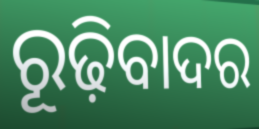
ରୂଢ଼ିବାଦର